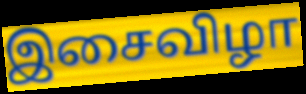
இசைவிழா